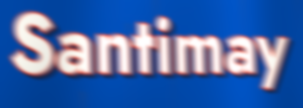
Santimay